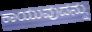
ಕಾಯುವುದನ್ನು